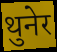
थुनेर